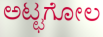
ಅಟ್ಟಗೋಲ